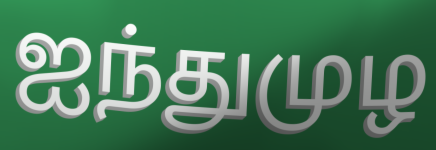
ஐந்துமுழ